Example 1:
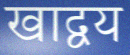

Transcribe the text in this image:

खाद्वय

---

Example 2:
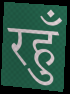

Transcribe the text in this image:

रहुँ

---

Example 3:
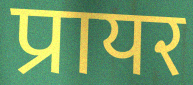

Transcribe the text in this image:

प्रायर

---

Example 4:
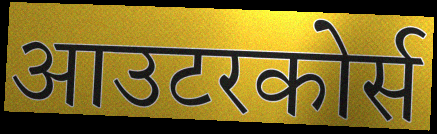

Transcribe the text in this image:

आउटरकोर्स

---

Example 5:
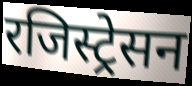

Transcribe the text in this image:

रजिस्ट्रेसन